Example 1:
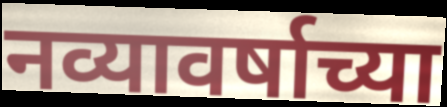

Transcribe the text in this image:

नव्यावर्षाच्या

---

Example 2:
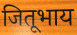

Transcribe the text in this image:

जितूभाय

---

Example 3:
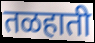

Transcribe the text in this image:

तळहाती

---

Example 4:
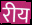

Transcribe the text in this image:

रीय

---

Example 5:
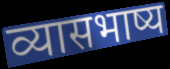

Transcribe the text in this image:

व्यासभाष्य